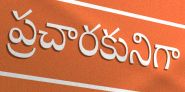
ప్రచారకునిగా